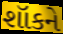
શૉકને